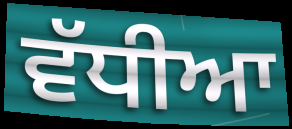
ਵੱਧੀਆ